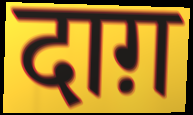
दाग़